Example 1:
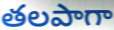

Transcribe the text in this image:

తలపాగా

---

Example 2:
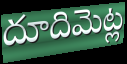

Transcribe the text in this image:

దూదిమెట్ల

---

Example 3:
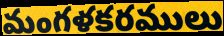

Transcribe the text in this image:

మంగళకరములు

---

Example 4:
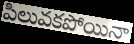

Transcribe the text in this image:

పిలువకపోయినా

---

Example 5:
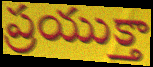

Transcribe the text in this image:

ప్రయుక్తా